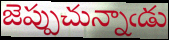
జెప్పుచున్నాఁడు